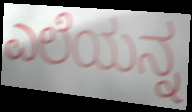
ಎಲೆಯನ್ನ